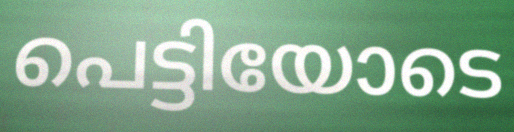
പെട്ടിയോടെ